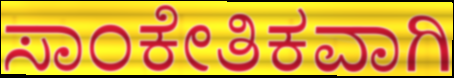
ಸಾಂಕೇತಿಕವಾಗಿ